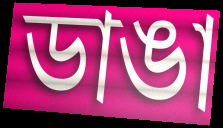
ডাঙা